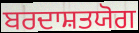
ਬਰਦਾਸ਼ਤਯੋਗ